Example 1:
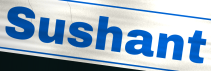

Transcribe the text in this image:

Sushant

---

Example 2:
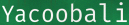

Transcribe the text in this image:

Yacoobali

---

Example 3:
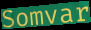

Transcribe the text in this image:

Somvar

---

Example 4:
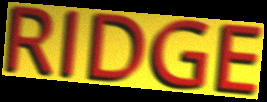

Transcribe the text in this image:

RIDGE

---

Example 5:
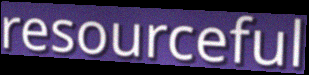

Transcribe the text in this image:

resourceful